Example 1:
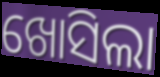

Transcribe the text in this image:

ଖୋସିଲା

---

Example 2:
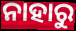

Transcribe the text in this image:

ନାହାରୁ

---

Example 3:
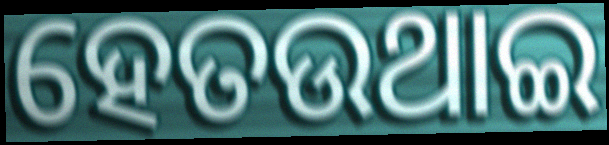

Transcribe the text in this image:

ହେତଉଥାଇ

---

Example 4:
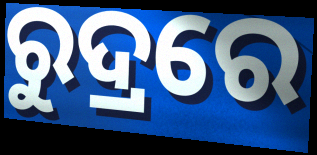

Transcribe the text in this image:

ରୁଦ୍ରରେ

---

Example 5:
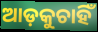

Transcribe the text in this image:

ଆଡ଼କୁଚାହିଁ